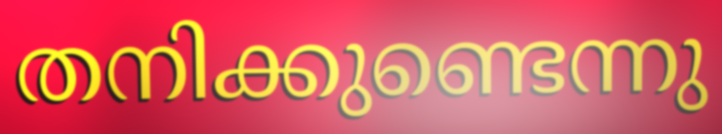
തനിക്കുണ്ടെന്നു